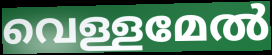
വെള്ളമേൽ